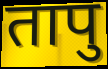
तापु